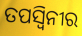
ତପସ୍ୱିନୀର